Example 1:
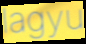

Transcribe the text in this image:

lagyu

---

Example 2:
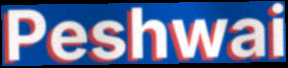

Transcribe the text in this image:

Peshwai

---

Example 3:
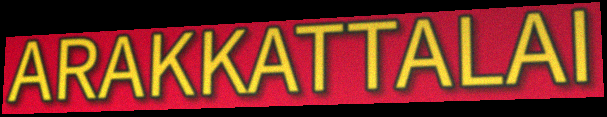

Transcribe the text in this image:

ARAKKATTALAI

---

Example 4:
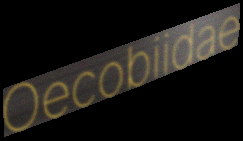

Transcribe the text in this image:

Oecobiidae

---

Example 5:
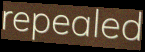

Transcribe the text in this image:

repealed